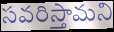
సవరిస్తామని